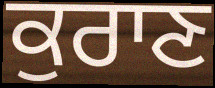
ਕੁਰਾਣ